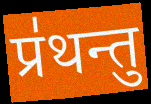
प्र॑थन्तु